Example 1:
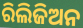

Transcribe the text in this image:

ରିଲିଜିଅନ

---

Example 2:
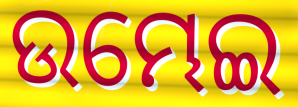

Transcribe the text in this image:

ଉମ୍ଭେଇ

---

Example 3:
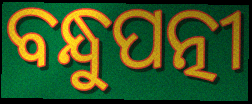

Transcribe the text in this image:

ବନ୍ଧୁପତ୍ନୀ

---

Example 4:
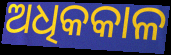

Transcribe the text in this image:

ଅଧିକକାଳ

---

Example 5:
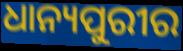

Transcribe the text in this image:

ଧାନ୍ୟପୁରୀର